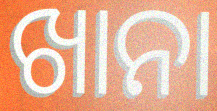
ଖାନା